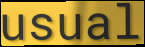
usual